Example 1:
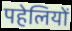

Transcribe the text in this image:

पहेलियों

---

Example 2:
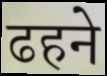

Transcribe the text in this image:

ढहने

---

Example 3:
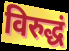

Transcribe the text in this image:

विरुद्धं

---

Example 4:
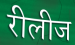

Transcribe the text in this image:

रीलीज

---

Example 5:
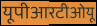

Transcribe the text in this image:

यूपीआरटीओयू